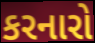
કરનારો